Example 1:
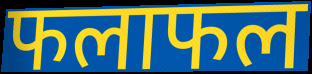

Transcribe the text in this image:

फलाफल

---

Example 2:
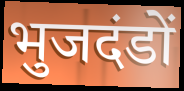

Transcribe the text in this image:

भुजदंडों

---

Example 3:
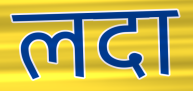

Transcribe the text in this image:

लदा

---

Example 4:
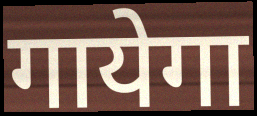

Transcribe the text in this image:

गायेगा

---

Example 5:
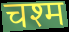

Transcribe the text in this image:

चश्म